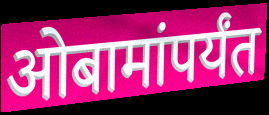
ओबामांपर्यंत